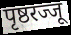
पृष्ठरज्जू